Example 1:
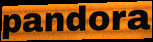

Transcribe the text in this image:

pandora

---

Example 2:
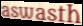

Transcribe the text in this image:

aswasth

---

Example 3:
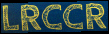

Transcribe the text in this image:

LRCCR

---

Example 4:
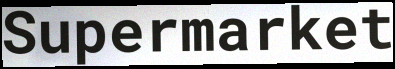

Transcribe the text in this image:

Supermarket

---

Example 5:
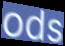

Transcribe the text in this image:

ods